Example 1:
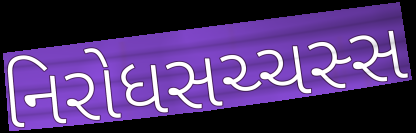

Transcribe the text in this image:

નિરોધસચ્ચસ્સ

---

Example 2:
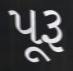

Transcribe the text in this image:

પૂરૂ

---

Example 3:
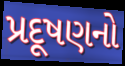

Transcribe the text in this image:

પ્રદૂષણનો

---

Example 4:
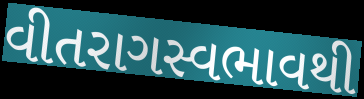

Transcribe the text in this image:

વીતરાગસ્વભાવથી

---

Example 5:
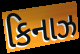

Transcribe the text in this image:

કિનાઝ